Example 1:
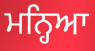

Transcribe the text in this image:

ਮਨ੍ਹਿਆ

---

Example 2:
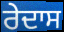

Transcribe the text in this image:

ਰੇਦਾਸ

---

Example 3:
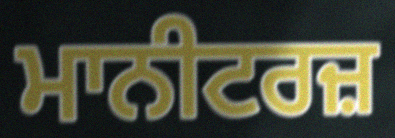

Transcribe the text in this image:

ਮਾਨੀਟਰਜ਼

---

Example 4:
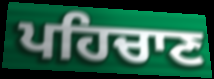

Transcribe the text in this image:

ਪਹਿਚਾਣ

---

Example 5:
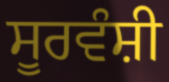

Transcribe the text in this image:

ਸੂਰਵੰਸ਼ੀ